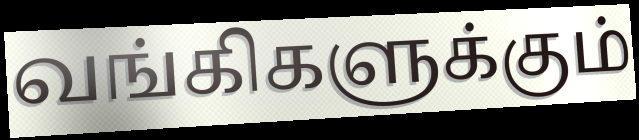
வங்கிகளுக்கும்